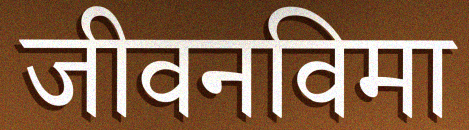
जीवनविमा